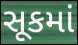
સૂકમાં